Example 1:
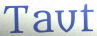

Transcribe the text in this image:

Taut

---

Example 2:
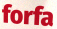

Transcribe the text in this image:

forfa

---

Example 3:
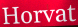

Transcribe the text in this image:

Horvat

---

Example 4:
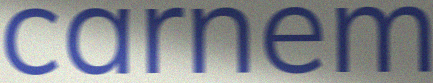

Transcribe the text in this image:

carnem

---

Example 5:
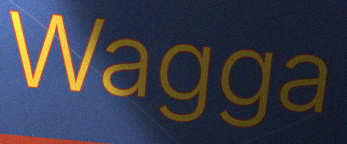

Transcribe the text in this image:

Wagga